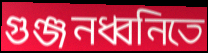
গুঞ্জনধ্বনিতে